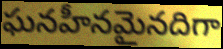
ఘనహీనమైనదిగా